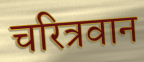
चरित्रवान